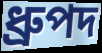
ধ্রুপদ